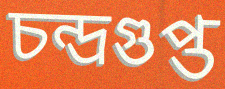
চন্দ্রগুপ্ত